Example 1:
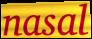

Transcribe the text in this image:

nasal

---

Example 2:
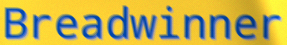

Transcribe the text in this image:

Breadwinner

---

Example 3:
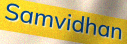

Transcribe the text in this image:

Samvidhan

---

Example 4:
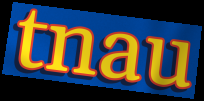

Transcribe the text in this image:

tnau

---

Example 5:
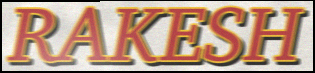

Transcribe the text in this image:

RAKESH